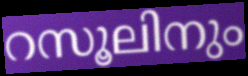
റസൂലിനും